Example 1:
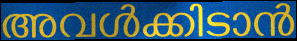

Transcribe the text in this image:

അവൾക്കിടാൻ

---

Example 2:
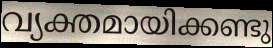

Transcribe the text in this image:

വ്യക്തമായിക്കണ്ടു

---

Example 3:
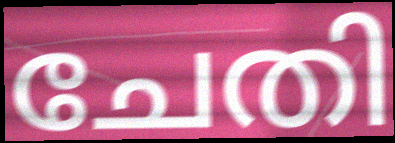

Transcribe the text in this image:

ചേതി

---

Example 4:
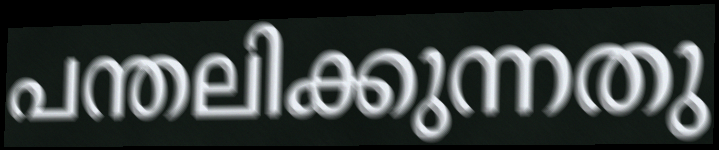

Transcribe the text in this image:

പന്തലിക്കുന്നതു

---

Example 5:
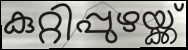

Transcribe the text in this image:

കുറ്റിപ്പുഴയ്ക്ക്